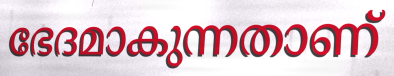
ഭേദമാകുന്നതാണ്